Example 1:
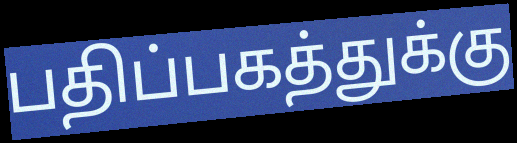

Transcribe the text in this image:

பதிப்பகத்துக்கு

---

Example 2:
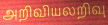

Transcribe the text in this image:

அறிவியலறிவு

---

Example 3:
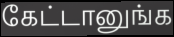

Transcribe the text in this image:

கேட்டானுங்க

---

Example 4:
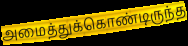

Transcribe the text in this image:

அமைத்துக்கொண்டிருந்த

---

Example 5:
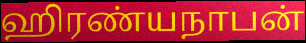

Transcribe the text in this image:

ஹிரண்யநாபன்